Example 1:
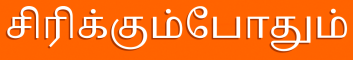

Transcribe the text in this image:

சிரிக்கும்போதும்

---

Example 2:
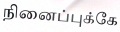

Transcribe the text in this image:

நினைப்புக்கே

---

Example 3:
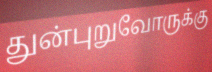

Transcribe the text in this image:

துன்புறுவோருக்கு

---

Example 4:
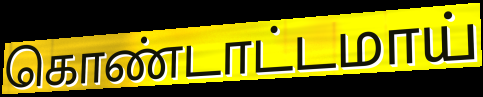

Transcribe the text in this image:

கொண்டாட்டமாய்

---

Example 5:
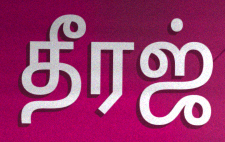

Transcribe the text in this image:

தீரஜ்